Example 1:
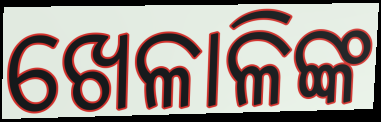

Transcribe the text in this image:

ଖେଳାଳିଙ୍କ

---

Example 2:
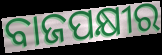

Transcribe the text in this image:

ବାଜପକ୍ଷୀର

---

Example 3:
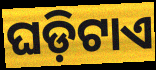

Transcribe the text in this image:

ଘଡ଼ିଟାଏ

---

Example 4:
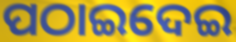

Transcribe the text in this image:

ପଠାଇଦେଇ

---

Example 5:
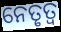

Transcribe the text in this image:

ନେତୃତ୍ଵ